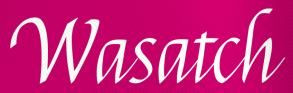
Wasatch